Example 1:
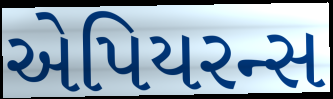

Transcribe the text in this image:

એપિયરન્સ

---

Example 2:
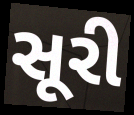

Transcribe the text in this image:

સૂરી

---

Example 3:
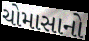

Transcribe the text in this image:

ચોમાસાનો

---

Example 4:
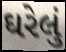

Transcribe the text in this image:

ઘરેલું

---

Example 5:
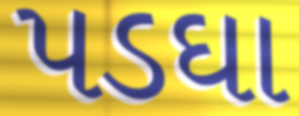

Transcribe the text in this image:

પડઘા